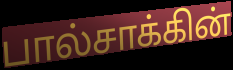
பால்சாக்கின்